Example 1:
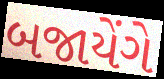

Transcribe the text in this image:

બજાયેંગે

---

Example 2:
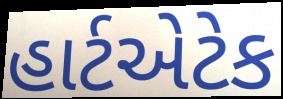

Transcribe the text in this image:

હાર્ટએટેક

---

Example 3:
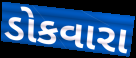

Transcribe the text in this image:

ડોકવારા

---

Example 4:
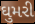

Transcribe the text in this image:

ઘુમરી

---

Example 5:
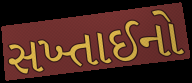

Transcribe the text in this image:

સખ્તાઈનો